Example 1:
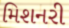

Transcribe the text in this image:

મિશનરી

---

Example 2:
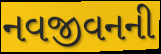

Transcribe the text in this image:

નવજીવનની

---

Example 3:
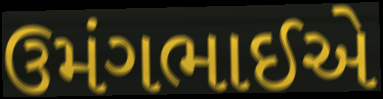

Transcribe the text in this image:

ઉમંગભાઈએ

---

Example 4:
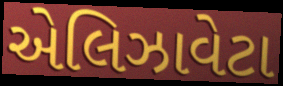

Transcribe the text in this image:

એલિઝાવેટા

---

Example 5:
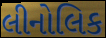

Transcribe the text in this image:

લીનોલિક